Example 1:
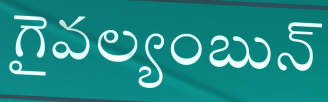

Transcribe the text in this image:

గైవల్యంబున్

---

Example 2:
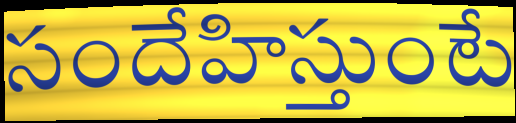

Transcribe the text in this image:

సందేహిస్తుంటే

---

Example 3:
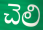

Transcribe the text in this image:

చెలి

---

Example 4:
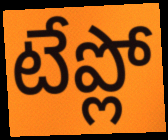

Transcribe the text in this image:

టేప్లో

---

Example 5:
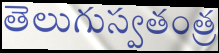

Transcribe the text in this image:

తెలుగుస్వతంత్ర